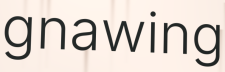
gnawing